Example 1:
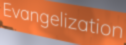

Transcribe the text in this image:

Evangelization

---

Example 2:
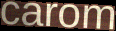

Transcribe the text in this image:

carom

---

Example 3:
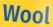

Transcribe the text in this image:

Wool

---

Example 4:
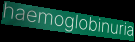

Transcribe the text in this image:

haemoglobinuria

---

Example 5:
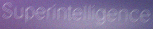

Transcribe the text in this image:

Superintelligence